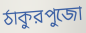
ঠাকুরপুজো